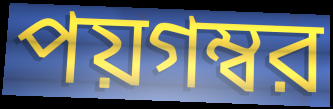
পয়গম্বর